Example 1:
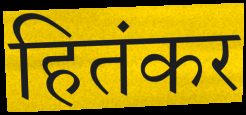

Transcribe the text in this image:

हितंकर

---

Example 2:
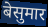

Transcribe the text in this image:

बेसुमार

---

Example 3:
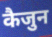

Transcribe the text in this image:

कैजुन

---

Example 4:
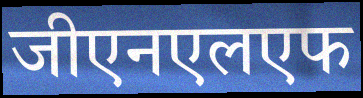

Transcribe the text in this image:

जीएनएलएफ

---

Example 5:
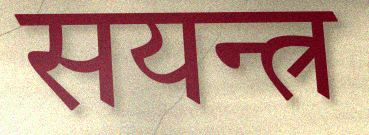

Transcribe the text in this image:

सयन्त्र